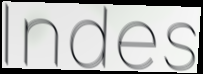
Indes